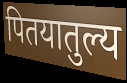
पितयातुल्य